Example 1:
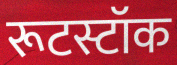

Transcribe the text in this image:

रूटस्टॉक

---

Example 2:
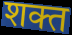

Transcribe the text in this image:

शक्त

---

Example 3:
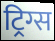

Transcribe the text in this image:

ट्रिग्स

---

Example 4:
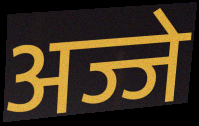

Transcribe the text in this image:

अज्जे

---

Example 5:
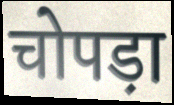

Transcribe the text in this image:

चोपड़ा